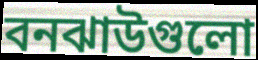
বনঝাউগুলো